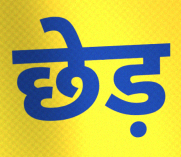
छेड़